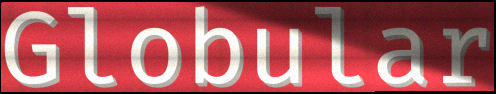
Globular